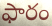
ఫారం